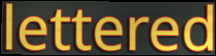
lettered